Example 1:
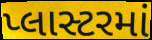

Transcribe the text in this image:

પ્લાસ્ટરમાં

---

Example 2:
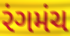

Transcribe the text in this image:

રંગમંચ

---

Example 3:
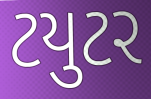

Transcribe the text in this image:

ટયુટર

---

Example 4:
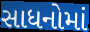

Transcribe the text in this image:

સાધનોમાં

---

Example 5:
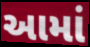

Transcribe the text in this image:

આમાં